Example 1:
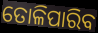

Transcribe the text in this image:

ତୋଳିପାରିବ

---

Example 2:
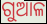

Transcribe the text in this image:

ଗୁଆଳ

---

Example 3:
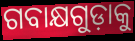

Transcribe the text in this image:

ଗବାକ୍ଷଗୁଡ଼ାକୁ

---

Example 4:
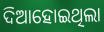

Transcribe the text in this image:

ଦିଆହୋଇଥିଲା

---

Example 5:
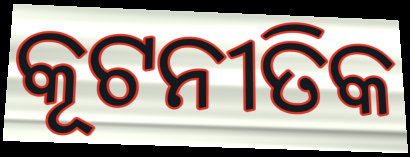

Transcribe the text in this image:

କୂଟନୀତିକ